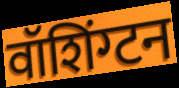
वॉशिंग्टन